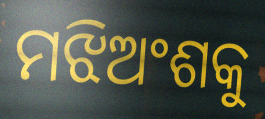
ମଝିଅଂଶକୁ